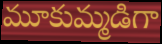
మూకుమ్మడిగా